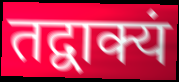
तद्वाक्यं